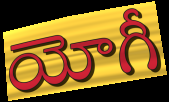
యోగీ